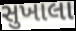
સુખાલા